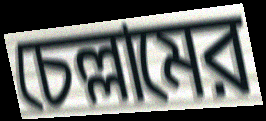
চেল্লামের